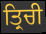
ਤ੍ਰਿਚੀ